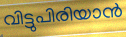
വിട്ടുപിരിയാൻ